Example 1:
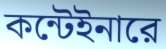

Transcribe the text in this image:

কন্টেইনারে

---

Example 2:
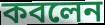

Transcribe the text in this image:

কবলেন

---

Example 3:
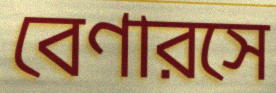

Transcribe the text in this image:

বেণারসে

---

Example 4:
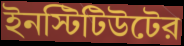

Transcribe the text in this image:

ইনস্টিটিউটের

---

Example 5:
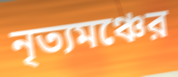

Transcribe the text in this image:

নৃত্যমঞ্চের